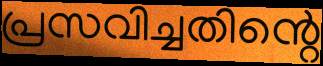
പ്രസവിച്ചതിന്റെ